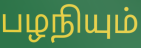
பழநியும்